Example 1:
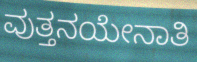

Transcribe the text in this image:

ವುತ್ತನಯೇನಾತಿ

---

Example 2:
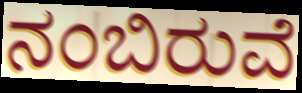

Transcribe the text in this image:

ನಂಬಿರುವೆ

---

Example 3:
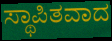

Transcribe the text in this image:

ಸ್ಥಾಪಿತವಾದ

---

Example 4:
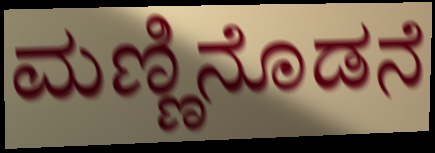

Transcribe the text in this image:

ಮಣ್ಣಿನೊಡನೆ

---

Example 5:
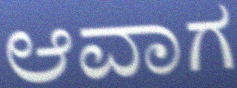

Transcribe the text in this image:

ಆವಾಗ